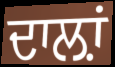
ਦਾਲ਼ਾਂ